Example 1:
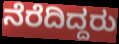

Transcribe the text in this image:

ನೆರೆದಿದ್ದರು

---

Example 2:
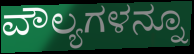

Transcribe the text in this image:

ವೌಲ್ಯಗಳನ್ನೂ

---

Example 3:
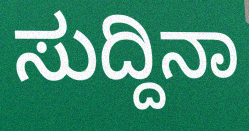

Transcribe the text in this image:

ಸುದ್ದಿನಾ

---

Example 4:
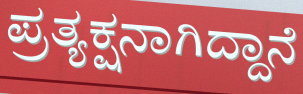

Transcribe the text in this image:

ಪ್ರತ್ಯಕ್ಷನಾಗಿದ್ದಾನೆ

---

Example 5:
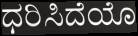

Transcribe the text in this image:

ಧರಿಸಿದೆಯೊ